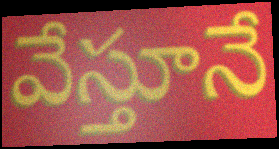
వేస్తూనే